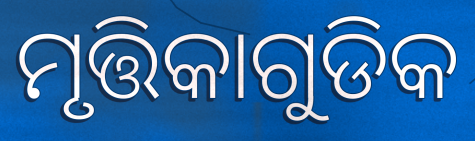
ମୃତ୍ତିକାଗୁଡିକ